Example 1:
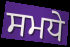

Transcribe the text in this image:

ਸਮਧੇ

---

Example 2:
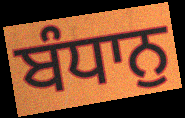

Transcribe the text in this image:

ਬੰਧਾਨੁ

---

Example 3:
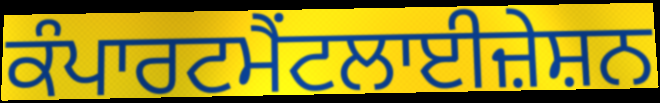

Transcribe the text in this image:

ਕੰਪਾਰਟਮੈਂਟਲਾਈਜ਼ੇਸ਼ਨ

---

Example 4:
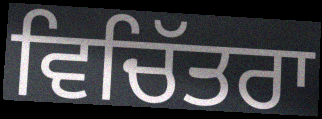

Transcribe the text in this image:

ਵਿਚਿੱਤਰਾ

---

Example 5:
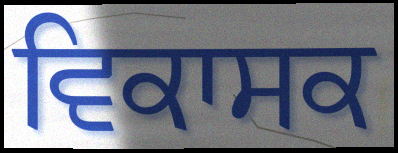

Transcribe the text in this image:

ਵਿਕਾਸਕ